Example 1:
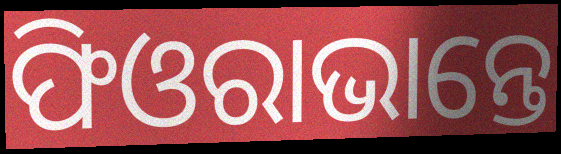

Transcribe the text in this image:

ଫିଓରାଭାନ୍ତେ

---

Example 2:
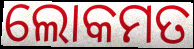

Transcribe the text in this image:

ଲୋକମତ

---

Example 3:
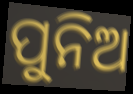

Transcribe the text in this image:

ପୁନିଅ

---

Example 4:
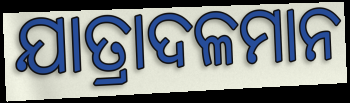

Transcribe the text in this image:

ଯାତ୍ରାଦଳମାନ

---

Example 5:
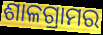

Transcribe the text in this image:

ଶାଳଗ୍ରାମର